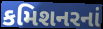
કમિશનરનાં